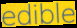
edible